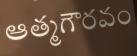
ఆత్మగౌరవం